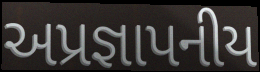
અપ્રજ્ઞાપનીય